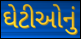
ઘેટીઓનું